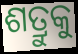
ଶତ୍ରୁକୁ